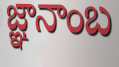
జ్ఞానాంబ